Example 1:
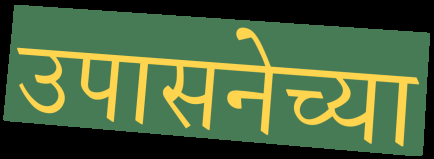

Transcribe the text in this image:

उपासनेच्या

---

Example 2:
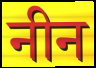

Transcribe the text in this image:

नीन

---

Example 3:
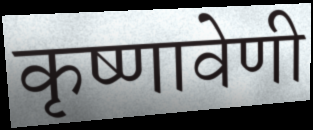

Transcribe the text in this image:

कृष्णावेणी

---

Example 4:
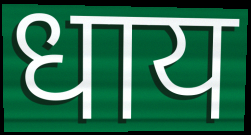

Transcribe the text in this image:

धाय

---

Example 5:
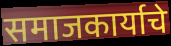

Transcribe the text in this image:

समाजकार्याचे